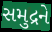
સમુદ્રને